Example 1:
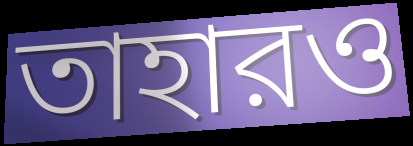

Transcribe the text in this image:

তাহারও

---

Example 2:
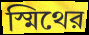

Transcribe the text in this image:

স্মিথের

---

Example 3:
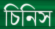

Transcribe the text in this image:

চিনিস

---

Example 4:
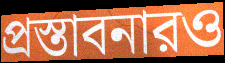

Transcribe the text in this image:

প্রস্তাবনারও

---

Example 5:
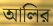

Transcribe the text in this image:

আলির